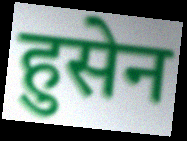
हुसेन